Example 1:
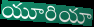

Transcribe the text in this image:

యూరియా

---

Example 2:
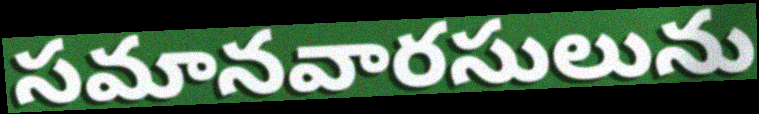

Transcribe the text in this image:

సమానవారసులును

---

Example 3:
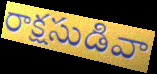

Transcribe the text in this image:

రాక్షసుడివా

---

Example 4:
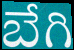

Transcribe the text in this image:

బేగి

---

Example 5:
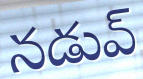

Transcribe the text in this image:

నడువ్